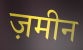
ज़मीन